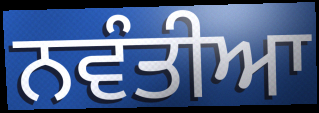
ਨਵੰਤੀਆ